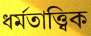
ধর্মতাত্ত্বিক